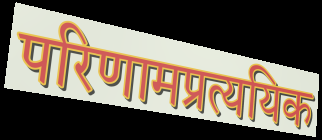
परिणामप्रत्ययिक